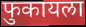
फुकायला